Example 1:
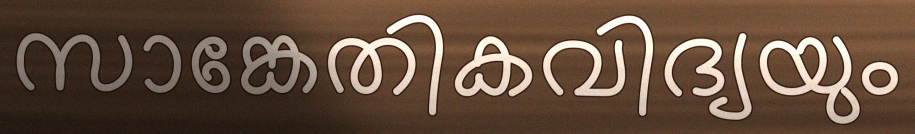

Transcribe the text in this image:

സാങ്കേതികവിദ്യയും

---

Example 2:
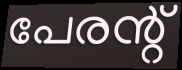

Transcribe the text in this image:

പേരന്റ്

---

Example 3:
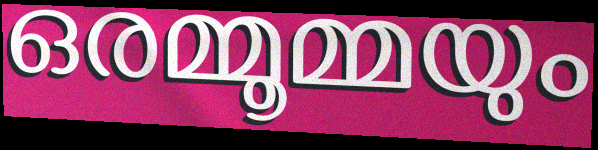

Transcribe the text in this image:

ഒരമ്മൂമ്മയും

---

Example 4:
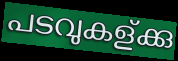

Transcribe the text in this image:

പടവുകള്ക്കു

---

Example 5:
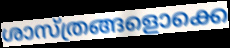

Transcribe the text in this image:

ശാസ്ത്രങ്ങളൊക്കെ